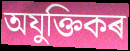
অযুক্তিকৰ